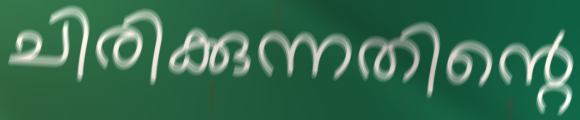
ചിരിക്കുന്നതിന്റെ